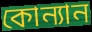
কোন্যান